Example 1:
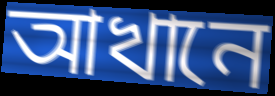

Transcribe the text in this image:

আখানে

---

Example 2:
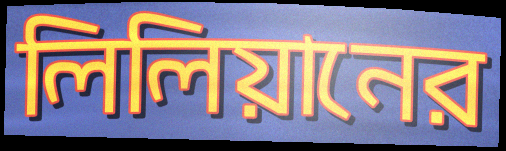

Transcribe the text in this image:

লিলিয়ানের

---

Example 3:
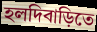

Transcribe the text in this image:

হলদিবাড়িতে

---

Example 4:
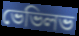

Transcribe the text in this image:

ভেভিলভ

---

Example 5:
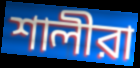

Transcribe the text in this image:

শালীরা